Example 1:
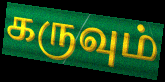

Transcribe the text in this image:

கருவும்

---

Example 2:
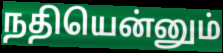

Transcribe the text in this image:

நதியென்னும்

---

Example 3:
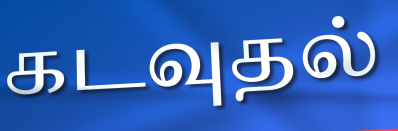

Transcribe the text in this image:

கடவுதல்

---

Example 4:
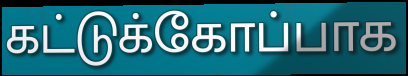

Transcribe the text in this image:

கட்டுக்கோப்பாக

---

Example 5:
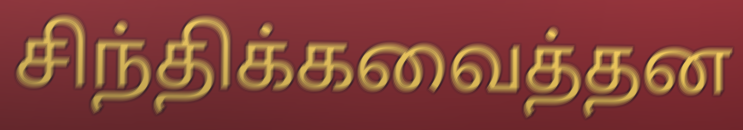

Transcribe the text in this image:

சிந்திக்கவைத்தன